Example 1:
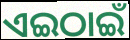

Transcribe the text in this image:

ଏଇଠାଇଁ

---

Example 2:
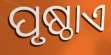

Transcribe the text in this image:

ପୃଷ୍ଠାଏ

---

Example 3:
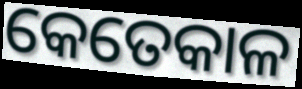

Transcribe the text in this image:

କେତେକାଳ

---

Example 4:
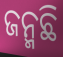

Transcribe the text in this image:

ଜନ୍ମଛି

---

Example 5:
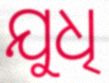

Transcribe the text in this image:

ଯୁଧି